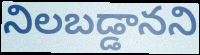
నిలబడ్డానని